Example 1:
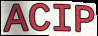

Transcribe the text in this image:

ACIP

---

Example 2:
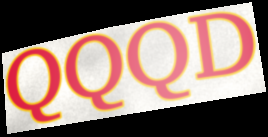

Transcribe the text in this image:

QQQD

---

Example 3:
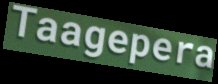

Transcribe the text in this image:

Taagepera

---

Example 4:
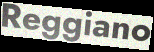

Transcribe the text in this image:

Reggiano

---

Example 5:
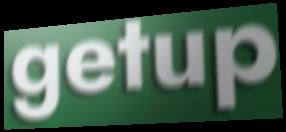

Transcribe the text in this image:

getup